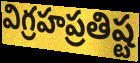
విగ్రహప్రతిష్ట